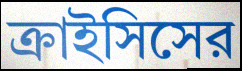
ক্রাইসিসের